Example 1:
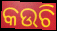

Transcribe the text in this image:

କଉଚି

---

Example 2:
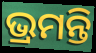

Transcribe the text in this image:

ଭ୍ରମନ୍ତି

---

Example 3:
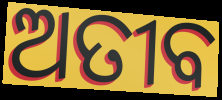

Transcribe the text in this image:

ଅତୀବ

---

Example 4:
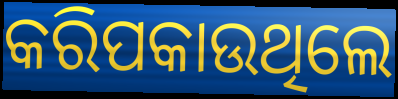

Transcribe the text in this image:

କରିପକାଉଥିଲେ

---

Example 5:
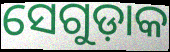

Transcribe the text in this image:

ସେଗୁଡ଼ାକ